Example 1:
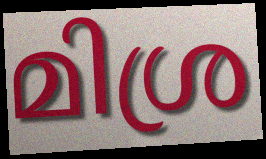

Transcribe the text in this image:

മിശ്ര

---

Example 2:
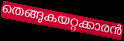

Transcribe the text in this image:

തെങ്ങുകയറ്റക്കാരൻ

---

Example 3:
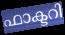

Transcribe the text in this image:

ഫാക്ടറി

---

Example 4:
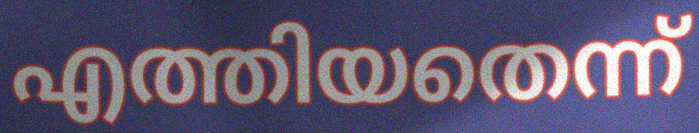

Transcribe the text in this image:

എത്തിയതെന്ന്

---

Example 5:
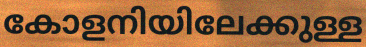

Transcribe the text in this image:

കോളനിയിലേക്കുള്ള